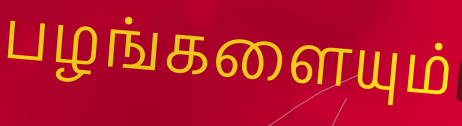
பழங்களையும்